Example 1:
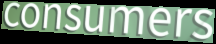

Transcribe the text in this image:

consumers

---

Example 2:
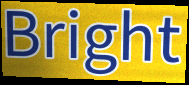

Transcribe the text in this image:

Bright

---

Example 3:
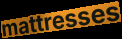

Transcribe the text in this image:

mattresses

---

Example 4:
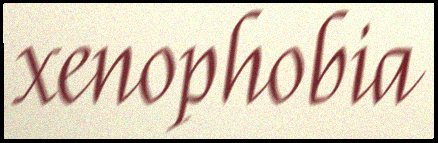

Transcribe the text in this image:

xenophobia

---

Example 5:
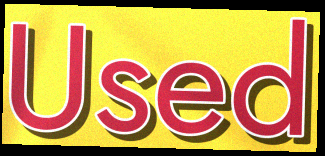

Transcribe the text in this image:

Used